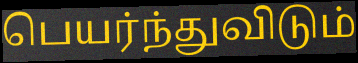
பெயர்ந்துவிடும்